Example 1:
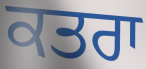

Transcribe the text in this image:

ਕਤਰਾ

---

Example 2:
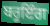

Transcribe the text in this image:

ਬਰੂਇੰਗ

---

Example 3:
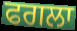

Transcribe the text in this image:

ਫਗਲਾ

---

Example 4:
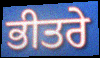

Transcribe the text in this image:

ਭੀਤਰੇ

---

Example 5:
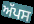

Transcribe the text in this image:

ਅੱਪਸ